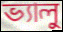
ভ্যালু